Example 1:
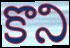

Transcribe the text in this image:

కొని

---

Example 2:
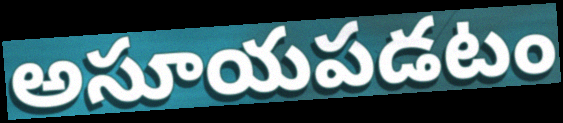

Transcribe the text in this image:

అసూయపడటం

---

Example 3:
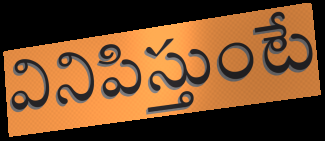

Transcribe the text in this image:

వినిపిస్తుంటే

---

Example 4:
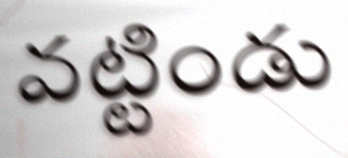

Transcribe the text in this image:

వట్టిండు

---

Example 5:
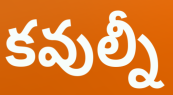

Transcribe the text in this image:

కవుల్నీ